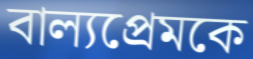
বাল্যপ্রেমকে